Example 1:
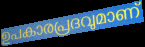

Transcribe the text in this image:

ഉപകാരപ്രദവുമാണ്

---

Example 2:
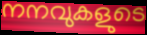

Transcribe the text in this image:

നനവുകളുടെ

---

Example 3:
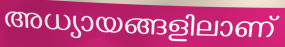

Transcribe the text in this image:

അധ്യായങ്ങളിലാണ്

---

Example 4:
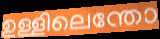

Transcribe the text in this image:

ഉള്ളിലെന്തോ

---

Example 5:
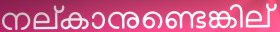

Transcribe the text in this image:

നല്കാനുണ്ടെങ്കില്